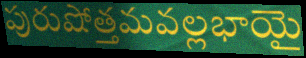
పురుషోత్తమవల్లభాయై